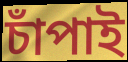
চাঁপাই